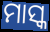
ମାସ୍କ